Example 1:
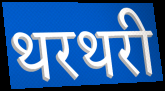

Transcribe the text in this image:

थरथरी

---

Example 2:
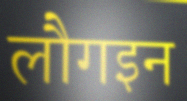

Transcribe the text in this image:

लौगइन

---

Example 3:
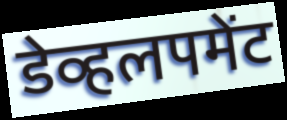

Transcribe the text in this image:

डेव्हलपमेंट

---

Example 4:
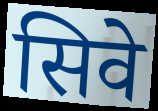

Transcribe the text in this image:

सिवे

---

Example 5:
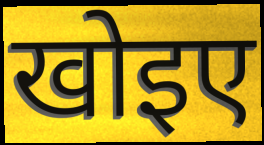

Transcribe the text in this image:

खोइए